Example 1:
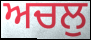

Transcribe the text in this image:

ਅਚਲੁ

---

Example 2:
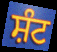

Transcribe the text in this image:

ਸ਼ੰਟ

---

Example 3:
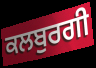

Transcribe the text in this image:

ਕਲਬੁਰਗੀ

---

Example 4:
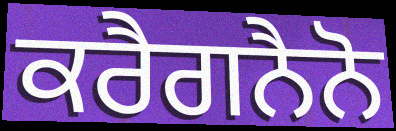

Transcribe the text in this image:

ਕਰੈਗਨੈਨੋ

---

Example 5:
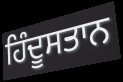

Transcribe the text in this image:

ਹਿੰਦੂਸਤਾਨ